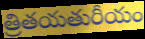
త్రితయతురీయం